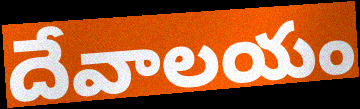
దేవాలయం